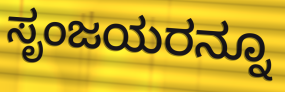
ಸೃಂಜಯರನ್ನೂ